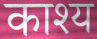
काश्य